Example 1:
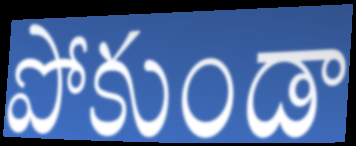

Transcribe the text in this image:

పోకుండా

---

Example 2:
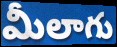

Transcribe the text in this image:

మీలాగు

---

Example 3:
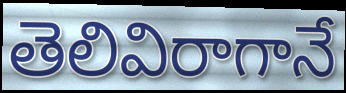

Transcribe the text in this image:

తెలివిరాగానే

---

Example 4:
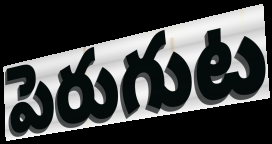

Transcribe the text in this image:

పెరుగుట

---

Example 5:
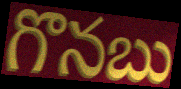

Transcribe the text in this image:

గొనబు